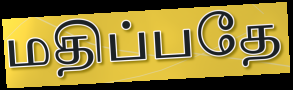
மதிப்பதே